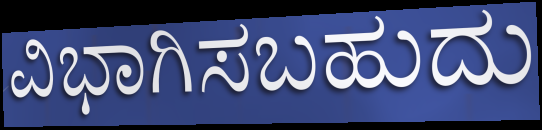
ವಿಭಾಗಿಸಬಹುದು